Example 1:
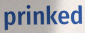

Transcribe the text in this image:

prinked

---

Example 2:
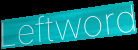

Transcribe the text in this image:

Leftword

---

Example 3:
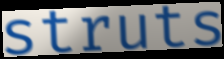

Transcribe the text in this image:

struts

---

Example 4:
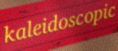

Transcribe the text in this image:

kaleidoscopic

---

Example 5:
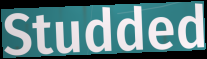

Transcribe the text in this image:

Studded